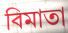
বিমাতা